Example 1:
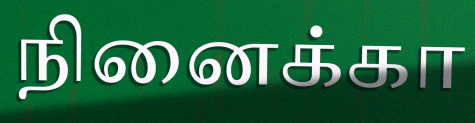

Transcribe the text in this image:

நினைக்கா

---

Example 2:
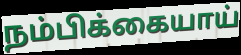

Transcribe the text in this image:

நம்பிக்கையாய்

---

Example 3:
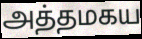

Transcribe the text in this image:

அத்தமகய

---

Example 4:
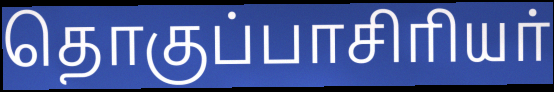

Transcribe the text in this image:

தொகுப்பாசிரியர்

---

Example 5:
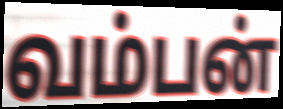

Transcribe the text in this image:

வம்பன்